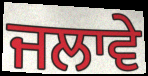
ਜਲਾਵੇ